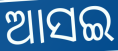
ଆସଇ